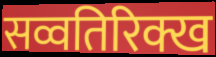
सव्वतिरिक्ख